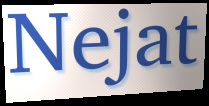
Nejat